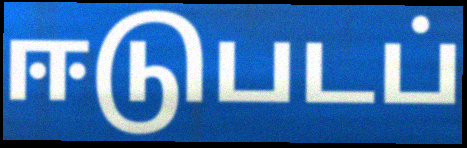
ஈடுபடப்